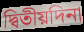
দ্বিতীয়দিনা